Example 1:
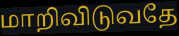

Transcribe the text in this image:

மாறிவிடுவதே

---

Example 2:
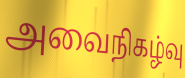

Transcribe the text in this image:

அவைநிகழ்வு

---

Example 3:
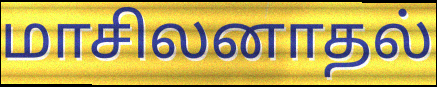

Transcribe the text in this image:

மாசிலனாதல்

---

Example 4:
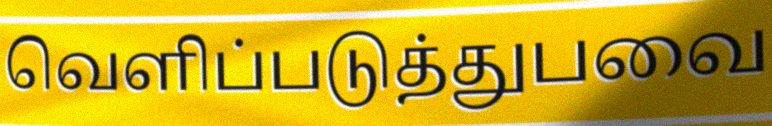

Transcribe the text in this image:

வெளிப்படுத்துபவை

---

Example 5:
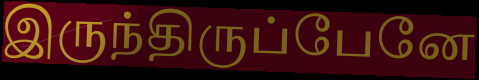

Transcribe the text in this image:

இருந்திருப்பேனே